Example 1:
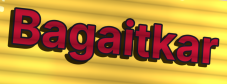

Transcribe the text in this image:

Bagaitkar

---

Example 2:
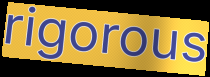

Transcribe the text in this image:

rigorous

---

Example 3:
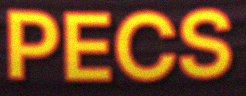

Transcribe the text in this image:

PECS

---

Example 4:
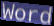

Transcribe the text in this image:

Word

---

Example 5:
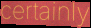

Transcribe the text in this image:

certainly